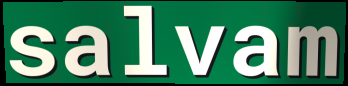
salvam